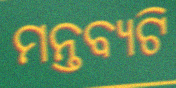
ମନ୍ତବ୍ୟଟି